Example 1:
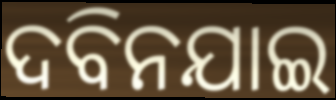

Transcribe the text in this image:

ଦବିନଯାଇ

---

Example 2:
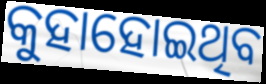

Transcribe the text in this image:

କୁହାହୋଇଥିବ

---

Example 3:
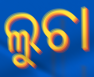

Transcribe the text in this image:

ଲୁଚା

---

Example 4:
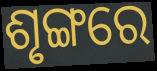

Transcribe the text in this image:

ଶୃଙ୍ଗରେ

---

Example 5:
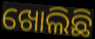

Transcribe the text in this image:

ଖୋଲିଛି